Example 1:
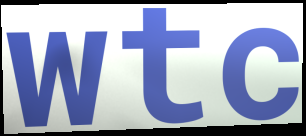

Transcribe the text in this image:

wtc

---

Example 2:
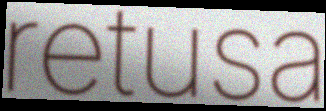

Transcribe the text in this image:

retusa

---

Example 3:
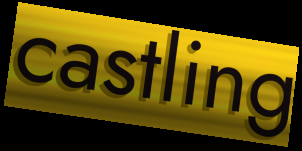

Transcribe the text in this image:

castling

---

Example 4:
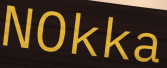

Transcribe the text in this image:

NOkka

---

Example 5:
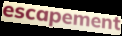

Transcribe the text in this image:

escapement